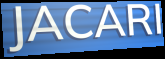
JACARI